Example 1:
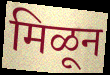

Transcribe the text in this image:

मिळून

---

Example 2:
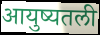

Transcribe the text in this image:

आयुष्यतली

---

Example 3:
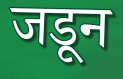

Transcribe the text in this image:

जडून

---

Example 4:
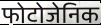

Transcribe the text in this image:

फोटोजेनिक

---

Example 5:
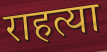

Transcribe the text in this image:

राहत्या